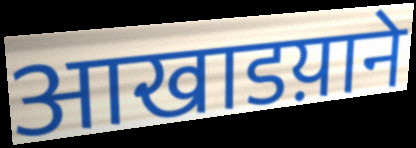
आखाडय़ाने